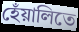
হেঁয়ালিতে